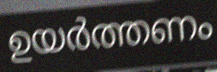
ഉയർത്തണം